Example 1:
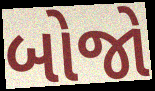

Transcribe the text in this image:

બોજો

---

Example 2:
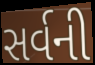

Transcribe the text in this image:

સર્વની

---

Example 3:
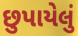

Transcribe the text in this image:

છુપાયેલું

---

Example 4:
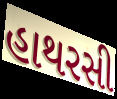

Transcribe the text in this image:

હાથરસી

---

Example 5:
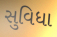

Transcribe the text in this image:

સુવિધા